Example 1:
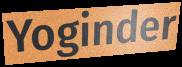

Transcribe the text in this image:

Yoginder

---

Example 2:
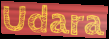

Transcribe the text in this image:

Udara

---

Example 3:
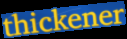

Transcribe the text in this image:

thickener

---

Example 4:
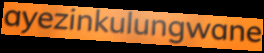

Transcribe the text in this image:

ayezinkulungwane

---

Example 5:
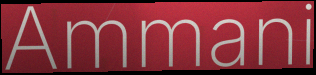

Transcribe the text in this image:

Ammani